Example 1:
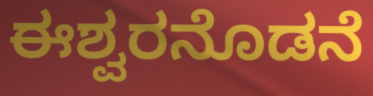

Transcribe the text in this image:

ಈಶ್ವರನೊಡನೆ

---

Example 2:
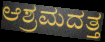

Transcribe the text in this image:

ಆಶ್ರಮದತ್ತ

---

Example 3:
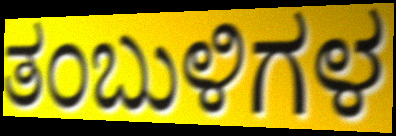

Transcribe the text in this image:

ತಂಬುಳಿಗಳ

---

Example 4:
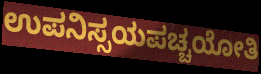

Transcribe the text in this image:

ಉಪನಿಸ್ಸಯಪಚ್ಚಯೋತಿ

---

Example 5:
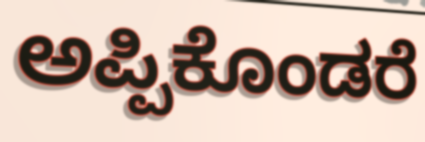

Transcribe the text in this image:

ಅಪ್ಪಿಕೊಂಡರೆ